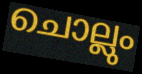
ചൊല്ലും